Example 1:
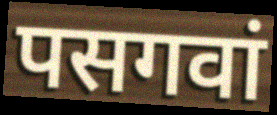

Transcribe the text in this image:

पसगवां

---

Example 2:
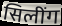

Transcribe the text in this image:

सिलींग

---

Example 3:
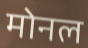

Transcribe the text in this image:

मोनल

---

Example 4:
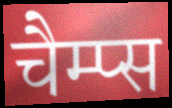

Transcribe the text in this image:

चैम्प्स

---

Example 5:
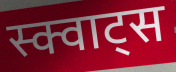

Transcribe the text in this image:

स्क्वाट्स